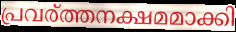
പ്രവര്ത്തനക്ഷമമാക്കി